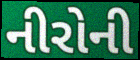
નીરોની